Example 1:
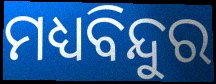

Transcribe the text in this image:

ମଧ୍ୟବିନ୍ଦୁର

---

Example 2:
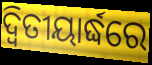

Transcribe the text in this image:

ଦ୍ୱିତୀୟାର୍ଦ୍ଧରେ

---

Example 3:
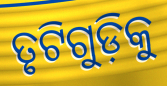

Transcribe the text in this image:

ତୃଟିଗୁଡ଼ିକୁ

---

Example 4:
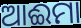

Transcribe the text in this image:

ଆଈମା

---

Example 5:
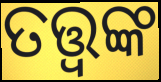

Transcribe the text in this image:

ତତ୍ତ୍ବଙ୍କ